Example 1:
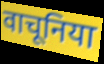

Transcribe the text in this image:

वाचूनिया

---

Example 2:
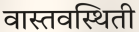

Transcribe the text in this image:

वास्तवस्थिती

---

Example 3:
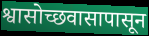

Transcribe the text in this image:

श्वासोच्छवासापासून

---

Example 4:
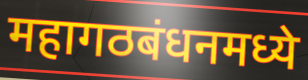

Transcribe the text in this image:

महागठबंधनमध्ये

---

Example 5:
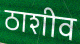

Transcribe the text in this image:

ठाशीव